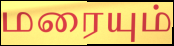
மரையும்